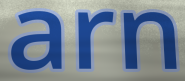
arn